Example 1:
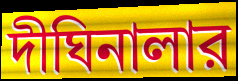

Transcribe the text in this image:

দীঘিনালার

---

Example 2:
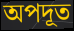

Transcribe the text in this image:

অপদূত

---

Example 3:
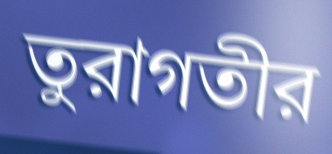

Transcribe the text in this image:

তুরাগতীর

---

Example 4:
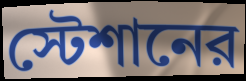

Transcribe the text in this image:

স্টেশানের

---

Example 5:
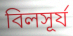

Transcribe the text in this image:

বিলসূর্য